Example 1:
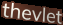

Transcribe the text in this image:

thevlet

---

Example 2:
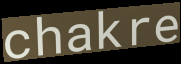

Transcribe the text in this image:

chakre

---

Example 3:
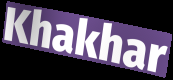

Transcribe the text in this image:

Khakhar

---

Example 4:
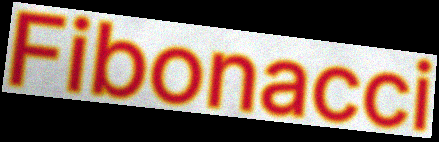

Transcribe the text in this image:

Fibonacci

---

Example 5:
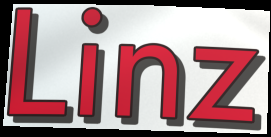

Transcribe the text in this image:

Linz